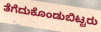
ತೆಗೆದುಕೊಂಡುಬಿಟ್ಟರು